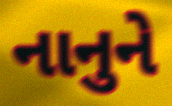
નાનુને